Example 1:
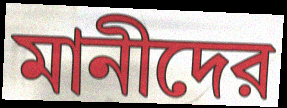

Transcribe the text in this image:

মানীদের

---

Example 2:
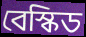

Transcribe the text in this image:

বেস্কিড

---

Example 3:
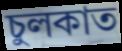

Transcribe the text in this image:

চুলকাত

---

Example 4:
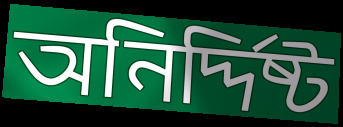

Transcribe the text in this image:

অনির্দ্দিষ্ট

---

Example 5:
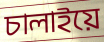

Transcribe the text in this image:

চালাইয়ে